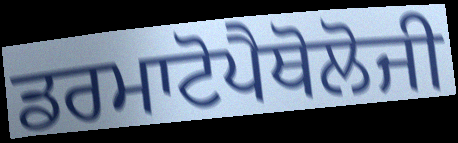
ਡਰਮਾਟੋਪੈਥੋਲੋਜੀ